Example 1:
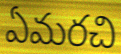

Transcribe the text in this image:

ఏమరచి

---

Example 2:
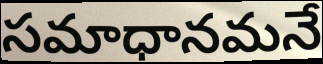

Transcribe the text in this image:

సమాధానమనే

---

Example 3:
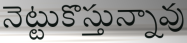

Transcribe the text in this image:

నెట్టుకొస్తున్నావు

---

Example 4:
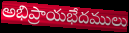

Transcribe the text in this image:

అభిప్రాయభేదములు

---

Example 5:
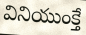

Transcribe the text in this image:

వినియుంక్తే